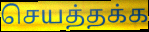
செயத்தக்க